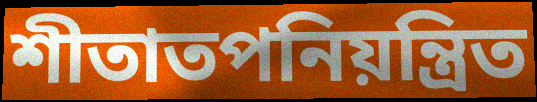
শীতাতপনিয়ন্ত্রিত